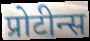
प्रोटीन्स